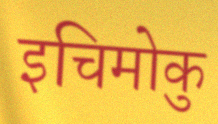
इचिमोकु